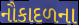
નૌકાદળના